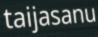
taijasanu